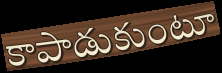
కాపాడుకుంటూ